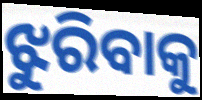
ଝୁରିବାକୁ